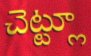
చెట్ట్లూ